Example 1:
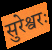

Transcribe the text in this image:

सुरेश्वरः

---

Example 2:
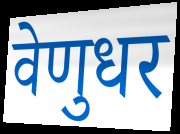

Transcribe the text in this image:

वेणुधर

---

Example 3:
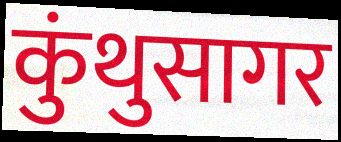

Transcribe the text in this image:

कुंथुसागर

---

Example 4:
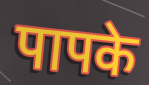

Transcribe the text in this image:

पापके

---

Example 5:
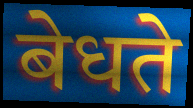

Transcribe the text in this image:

बेधते